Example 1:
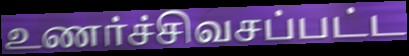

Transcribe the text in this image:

உணர்ச்சிவசப்பட்ட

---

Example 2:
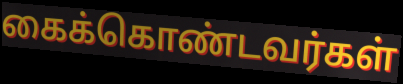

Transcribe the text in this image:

கைக்கொண்டவர்கள்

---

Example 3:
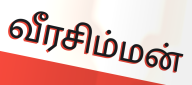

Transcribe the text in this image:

வீரசிம்மன்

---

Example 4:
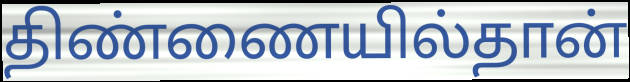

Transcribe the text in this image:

திண்ணையில்தான்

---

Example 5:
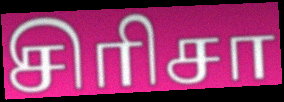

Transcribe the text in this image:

சிரிசா